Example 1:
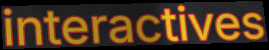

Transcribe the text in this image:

interactives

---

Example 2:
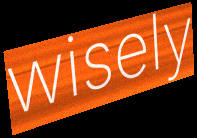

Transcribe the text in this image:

wisely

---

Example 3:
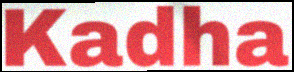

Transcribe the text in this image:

Kadha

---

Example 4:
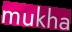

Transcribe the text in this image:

mukha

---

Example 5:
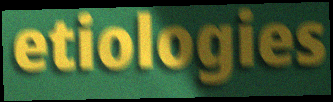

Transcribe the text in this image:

etiologies